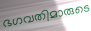
ഭഗവതിമാരുടെ